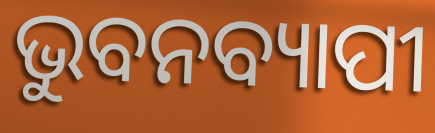
ଭୁବନବ୍ୟାପୀ